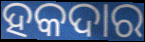
ହକଦାର